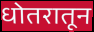
धोतरातून